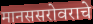
मानससरोवराचे